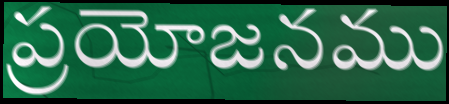
ప్రయోజనము